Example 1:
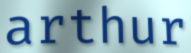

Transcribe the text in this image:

arthur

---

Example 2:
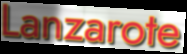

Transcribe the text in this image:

Lanzarote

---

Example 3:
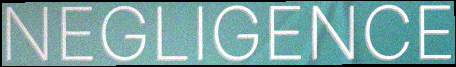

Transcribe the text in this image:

NEGLIGENCE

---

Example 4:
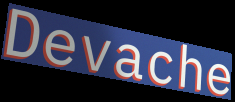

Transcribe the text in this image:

Devache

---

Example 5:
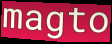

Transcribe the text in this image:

magto